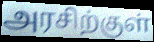
அரசிற்குள்